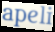
apeli